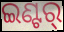
ଇଣ୍ଟର୍